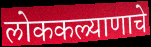
लोककल्याणाचे